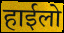
हाईलो